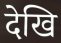
देखि